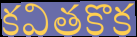
కవితకొక